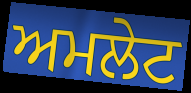
ਅਮਲੇਟ